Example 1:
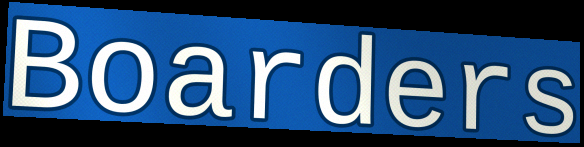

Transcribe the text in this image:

Boarders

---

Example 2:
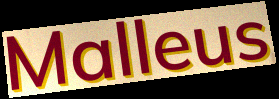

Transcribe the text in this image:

Malleus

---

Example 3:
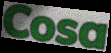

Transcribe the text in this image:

Cosa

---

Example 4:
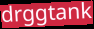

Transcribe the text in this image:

drggtank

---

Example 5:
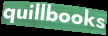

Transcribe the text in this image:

quillbooks